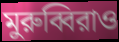
মুরুব্বিরাও